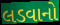
લડવાનો